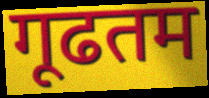
गूढतम